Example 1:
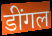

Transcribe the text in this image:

डींगल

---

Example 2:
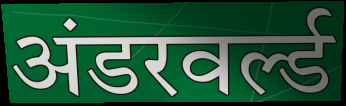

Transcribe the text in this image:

अंडरवर्ल्‍ड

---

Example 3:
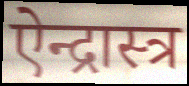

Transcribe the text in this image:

ऐन्द्रास्त्र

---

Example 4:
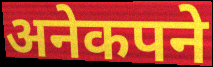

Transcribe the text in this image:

अनेकपने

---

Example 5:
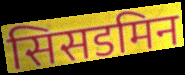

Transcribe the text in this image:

सिसडमिन